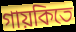
গায়কিতে